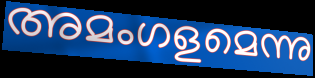
അമംഗളമെന്നു